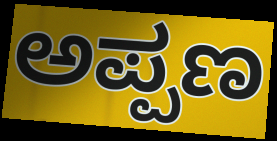
ಅಪ್ಪಣ